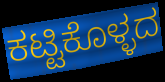
ಕಟ್ಟಿಕೊಳ್ಳದ